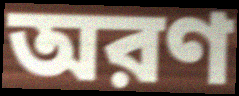
অরণ